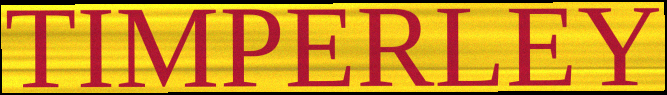
TIMPERLEY